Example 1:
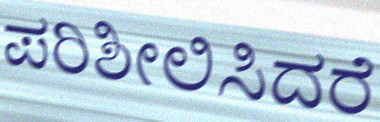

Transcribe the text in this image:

ಪರಿಶೀಲಿಸಿದರೆ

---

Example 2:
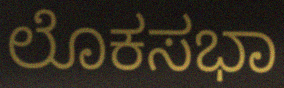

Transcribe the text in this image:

ಲೊಕಸಭಾ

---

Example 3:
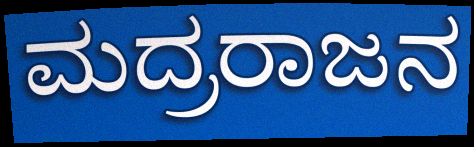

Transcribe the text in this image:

ಮದ್ರರಾಜನ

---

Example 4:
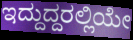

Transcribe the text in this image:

ಇದ್ದುದ್ದರಲ್ಲಿಯೇ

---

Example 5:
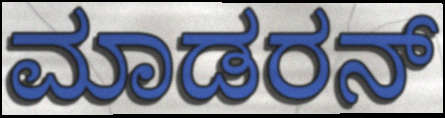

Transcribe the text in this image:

ಮಾಡರನ್